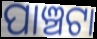
ପାଞ୍ଚଟା